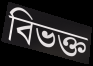
বিভক্ত